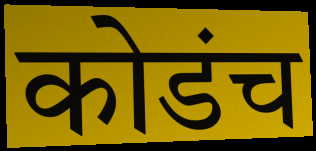
कोडंच